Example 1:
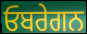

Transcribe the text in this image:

ਓਬਰੇਗਨ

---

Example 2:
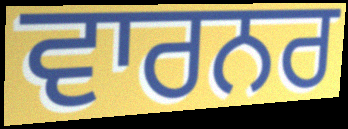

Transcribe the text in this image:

ਵਾਰਨਰ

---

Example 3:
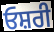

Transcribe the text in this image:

ਓਸ਼ਰੀ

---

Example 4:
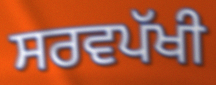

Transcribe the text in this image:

ਸਰਵਪੱਖੀ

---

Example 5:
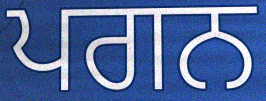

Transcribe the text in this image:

ਪਗਨ